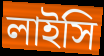
লাইসি